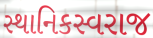
સ્થાનિકસ્વરાજ